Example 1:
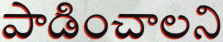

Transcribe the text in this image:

పాడించాలని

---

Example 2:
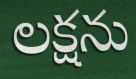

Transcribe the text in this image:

లక్షను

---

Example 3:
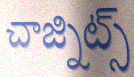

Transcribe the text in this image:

చాజ్నిట్స్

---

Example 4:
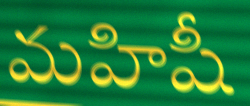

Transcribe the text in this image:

మహిషీ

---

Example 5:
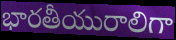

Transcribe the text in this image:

భారతీయురాలిగా